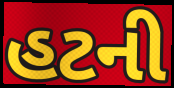
હટની